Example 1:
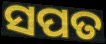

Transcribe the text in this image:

ସପତ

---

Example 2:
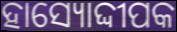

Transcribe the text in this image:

ହାସ୍ୟୋଦ୍ଦୀପକ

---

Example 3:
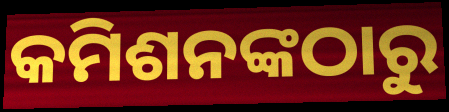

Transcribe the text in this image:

କମିଶନଙ୍କଠାରୁ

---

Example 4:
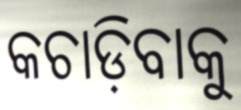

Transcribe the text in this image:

କଚାଡ଼ିବାକୁ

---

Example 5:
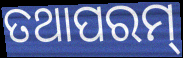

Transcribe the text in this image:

ତଥାପରମ୍